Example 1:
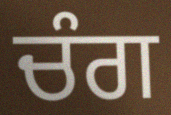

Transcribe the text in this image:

ਚੰਗ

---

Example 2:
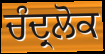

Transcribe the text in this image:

ਚੰਦ੍ਰਲੋਕ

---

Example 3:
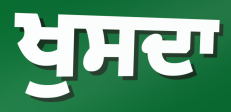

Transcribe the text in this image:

ਖੁਸਦਾ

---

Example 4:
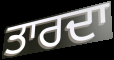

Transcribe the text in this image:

ਤਾਰਦਾ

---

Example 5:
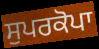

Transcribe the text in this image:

ਸੁਪਰਕੋਪਾ